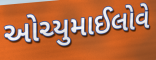
ઓચ્યુમાઈલોવે